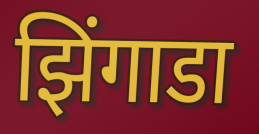
झिंगाडा